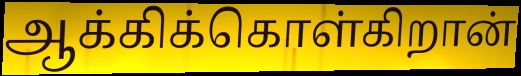
ஆக்கிக்கொள்கிறான்